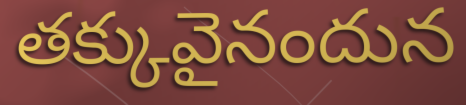
తక్కువైనందున